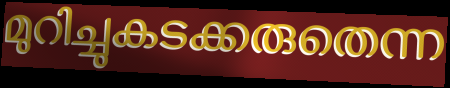
മുറിച്ചുകടക്കരുതെന്ന